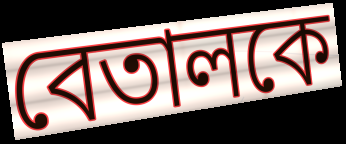
বেতালকে